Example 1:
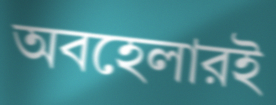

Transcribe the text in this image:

অবহেলারই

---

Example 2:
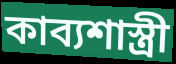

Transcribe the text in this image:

কাব্যশাস্ত্রী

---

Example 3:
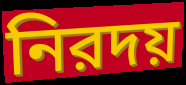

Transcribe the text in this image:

নিরদয়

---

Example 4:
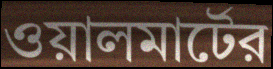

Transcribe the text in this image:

ওয়ালমার্টের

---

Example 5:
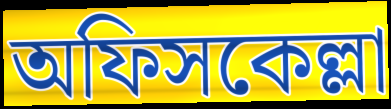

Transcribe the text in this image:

অফিসকেল্লা